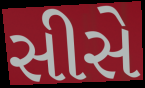
સીસે